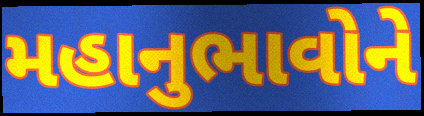
મહાનુભાવોને